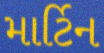
માર્ટિન